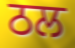
ਠਲ